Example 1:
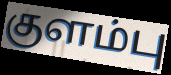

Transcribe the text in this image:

குளம்பு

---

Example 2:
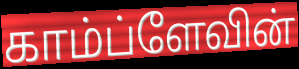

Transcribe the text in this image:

காம்ப்ளேவின்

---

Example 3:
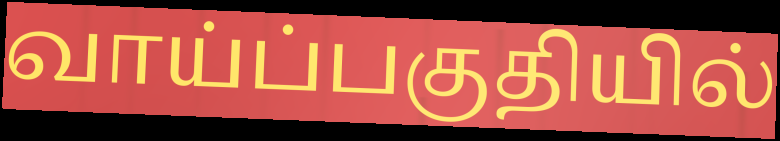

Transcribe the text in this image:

வாய்ப்பகுதியில்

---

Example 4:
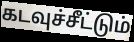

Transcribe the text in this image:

கடவுச்சீட்டும்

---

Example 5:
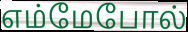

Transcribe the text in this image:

எம்மேபோல்